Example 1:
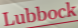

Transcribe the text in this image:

Lubbock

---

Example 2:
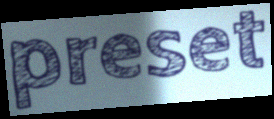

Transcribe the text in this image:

preset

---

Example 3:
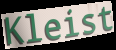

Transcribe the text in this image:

Kleist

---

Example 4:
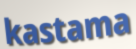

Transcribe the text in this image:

kastama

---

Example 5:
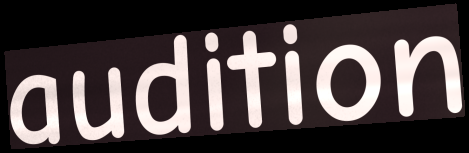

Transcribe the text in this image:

audition